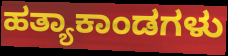
ಹತ್ಯಾಕಾಂಡಗಳು